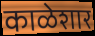
काळेशार